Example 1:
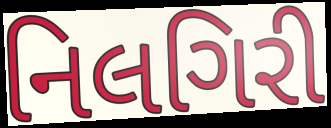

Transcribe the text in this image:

નિલગિરી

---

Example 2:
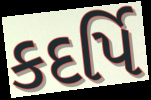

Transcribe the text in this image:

કદર્પિ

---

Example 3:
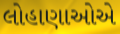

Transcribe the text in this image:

લોહાણાઓએ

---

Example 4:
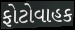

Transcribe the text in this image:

ફોટોવાહક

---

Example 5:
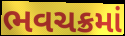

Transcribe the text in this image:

ભવચક્રમાં